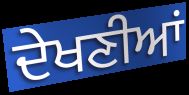
ਦੇਖਣੀਆਂ